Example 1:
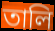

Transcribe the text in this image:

তালি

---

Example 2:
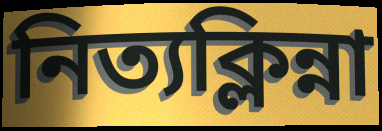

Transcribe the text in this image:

নিত্যক্লিন্না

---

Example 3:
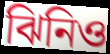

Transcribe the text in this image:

ঝিনিও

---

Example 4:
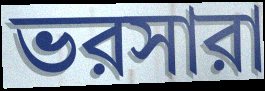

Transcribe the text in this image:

ভরসারা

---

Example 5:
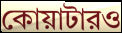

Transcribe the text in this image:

কোয়াটারও